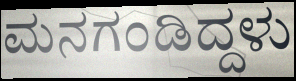
ಮನಗಂಡಿದ್ದಳು